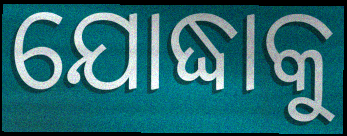
ଯୋଦ୍ଧାକୁ